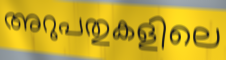
അറുപതുകളിലെ